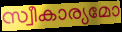
സ്വീകാര്യമോ